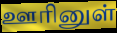
ஊரினுள்